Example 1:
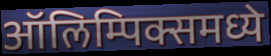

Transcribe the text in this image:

ऑलिम्पिक्समध्ये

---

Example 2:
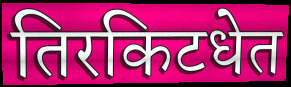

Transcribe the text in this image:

तिरकिटधेत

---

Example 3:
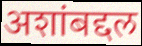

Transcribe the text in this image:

अशांबद्दल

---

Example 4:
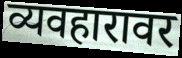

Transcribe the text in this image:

व्यवहारावर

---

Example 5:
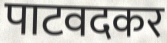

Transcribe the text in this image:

पाटवदकर